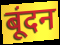
बूंदन